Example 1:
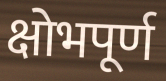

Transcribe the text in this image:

क्षोभपूर्ण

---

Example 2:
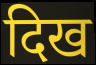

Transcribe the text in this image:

दिख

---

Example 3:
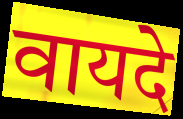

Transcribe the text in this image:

वायदे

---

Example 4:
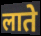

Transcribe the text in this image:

लाते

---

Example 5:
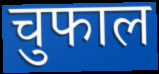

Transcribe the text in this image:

चुफाल